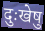
दुःखेषु